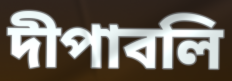
দীপাবলি